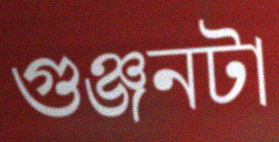
গুঞ্জনটা